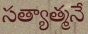
సత్యాత్మనే